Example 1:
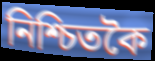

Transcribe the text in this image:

নিশ্চিতকৈ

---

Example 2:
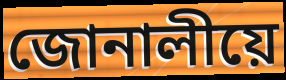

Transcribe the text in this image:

জোনালীয়ে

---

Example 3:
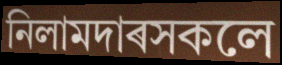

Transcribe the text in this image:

নিলামদাৰসকলে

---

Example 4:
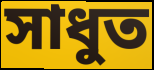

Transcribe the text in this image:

সাধুত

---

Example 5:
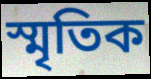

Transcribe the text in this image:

স্মৃতিক